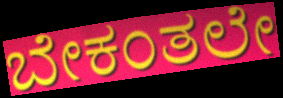
ಬೇಕಂತಲೇ